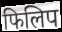
फिलिप